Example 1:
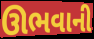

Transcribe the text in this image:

ઊભવાની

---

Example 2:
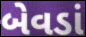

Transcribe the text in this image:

બેવડાં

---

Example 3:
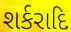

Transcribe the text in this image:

શર્કરાદિ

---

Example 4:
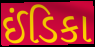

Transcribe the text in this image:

ઈંડિકા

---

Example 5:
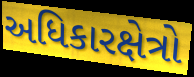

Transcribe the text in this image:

અધિકારક્ષેત્રો